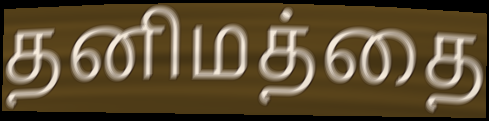
தனிமத்தை